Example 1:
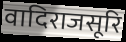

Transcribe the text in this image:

वादिराजसूरि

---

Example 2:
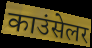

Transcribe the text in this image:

काउंसेलर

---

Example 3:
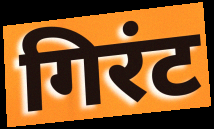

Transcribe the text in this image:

गिरंट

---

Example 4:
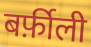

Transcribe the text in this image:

बर्फ़ीली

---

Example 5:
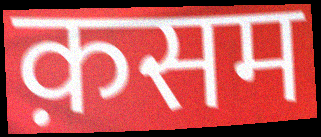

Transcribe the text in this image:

क़सम